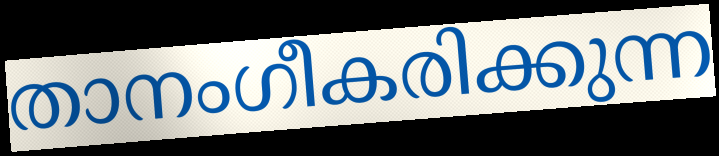
താനംഗീകരിക്കുന്ന